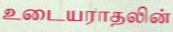
உடையராதலின்